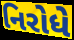
નિરોધે